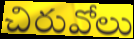
చిరువోలు